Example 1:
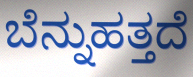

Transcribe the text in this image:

ಬೆನ್ನುಹತ್ತದೆ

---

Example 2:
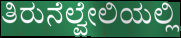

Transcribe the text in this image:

ತಿರುನೆಲ್ವೇಲಿಯಲ್ಲಿ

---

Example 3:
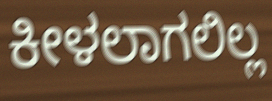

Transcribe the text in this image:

ಕೀಳಲಾಗಲಿಲ್ಲ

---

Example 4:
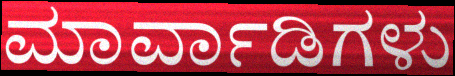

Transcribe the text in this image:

ಮಾರ್ವಾಡಿಗಳು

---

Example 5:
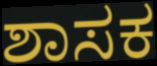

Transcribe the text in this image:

ಶಾಸಕ